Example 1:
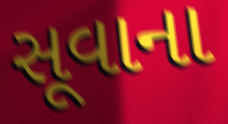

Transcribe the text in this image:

સૂવાના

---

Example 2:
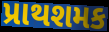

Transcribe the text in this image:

પ્રાથશમક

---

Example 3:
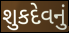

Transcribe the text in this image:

શુકદેવનું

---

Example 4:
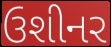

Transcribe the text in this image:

ઉશીનર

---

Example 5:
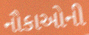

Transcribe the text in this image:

નૌકાઓની